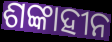
ଶଙ୍କାହୀନ